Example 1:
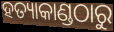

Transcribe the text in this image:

ହତ୍ୟାକାଣ୍ଡଠାରୁ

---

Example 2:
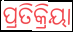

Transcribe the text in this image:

ପ୍ରତିକ୍ରିୟା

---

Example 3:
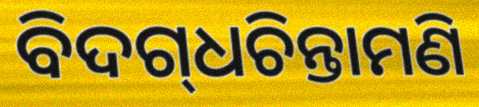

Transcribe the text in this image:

ବିଦଗ୍‌ଧଚିନ୍ତାମଣି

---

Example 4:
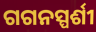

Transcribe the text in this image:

ଗଗନସ୍ପର୍ଶୀ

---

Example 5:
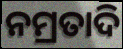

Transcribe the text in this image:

ନମ୍ରତାଦି